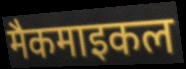
मैकमाइकल